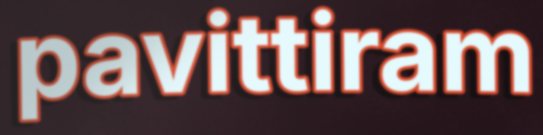
pavittiram